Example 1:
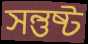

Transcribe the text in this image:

সন্তুষ্ট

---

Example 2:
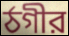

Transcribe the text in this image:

ঠগীর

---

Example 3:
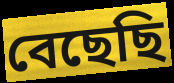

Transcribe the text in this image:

বেছেছি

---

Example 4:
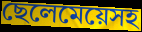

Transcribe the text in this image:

ছেলেমেয়েসহ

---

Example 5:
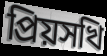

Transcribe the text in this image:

প্রিয়সখি